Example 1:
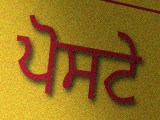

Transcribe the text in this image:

ਪੋਸਟੇ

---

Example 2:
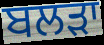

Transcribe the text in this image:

ਬਲੜਾ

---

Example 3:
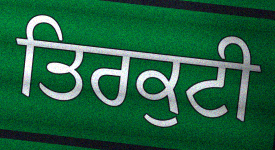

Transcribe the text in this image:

ਤਿਰਕੁਟੀ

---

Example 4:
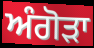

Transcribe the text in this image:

ਅੰਗੋੜਾ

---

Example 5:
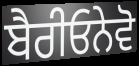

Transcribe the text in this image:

ਬੈਰੀਓਨੇਵੋ